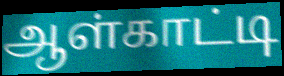
ஆள்காட்டி